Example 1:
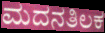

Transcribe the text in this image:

ಮದನತಿಲಕ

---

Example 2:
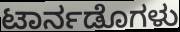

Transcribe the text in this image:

ಟಾರ್ನಡೊಗಳು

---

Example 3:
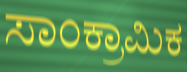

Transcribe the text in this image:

ಸಾಂಕ್ರಾಮಿಕ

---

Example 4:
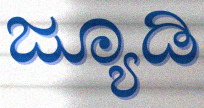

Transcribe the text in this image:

ಜ್ಯೂಡಿ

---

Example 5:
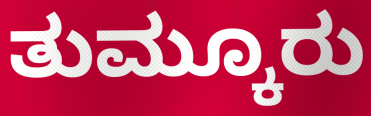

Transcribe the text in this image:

ತುಮ್ಕೂರು